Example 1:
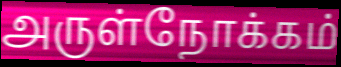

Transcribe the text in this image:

அருள்நோக்கம்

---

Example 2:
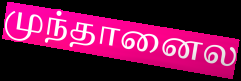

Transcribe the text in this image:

முந்தானைல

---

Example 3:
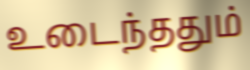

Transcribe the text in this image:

உடைந்ததும்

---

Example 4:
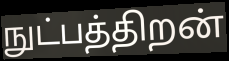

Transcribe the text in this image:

நுட்பத்திறன்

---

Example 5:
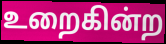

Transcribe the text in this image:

உறைகின்ற